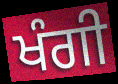
ਖੰਗੀ